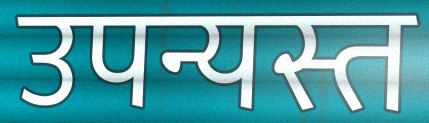
उपन्यस्त